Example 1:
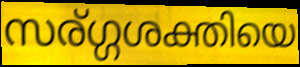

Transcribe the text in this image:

സര്ഗ്ഗശക്തിയെ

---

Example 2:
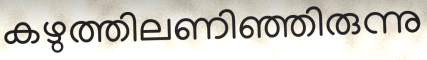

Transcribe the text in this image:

കഴുത്തിലണിഞ്ഞിരുന്നു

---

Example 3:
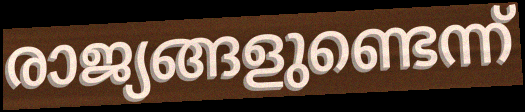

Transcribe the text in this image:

രാജ്യങ്ങളുണ്ടെന്ന്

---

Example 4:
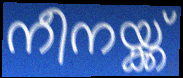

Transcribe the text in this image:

നീനയ്ക്ക്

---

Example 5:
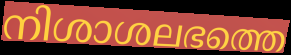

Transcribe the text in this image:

നിശാശലഭത്തെ